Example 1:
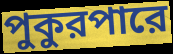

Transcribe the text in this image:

পুকুরপারে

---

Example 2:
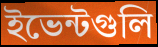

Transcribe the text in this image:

ইভেন্টগুলি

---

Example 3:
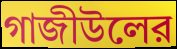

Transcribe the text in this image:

গাজীউলের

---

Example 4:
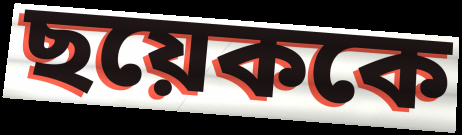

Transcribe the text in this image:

ছয়েককে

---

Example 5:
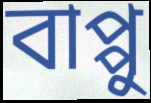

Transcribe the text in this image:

বাপ্পু